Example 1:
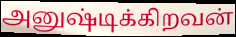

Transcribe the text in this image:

அனுஷ்டிக்கிறவன்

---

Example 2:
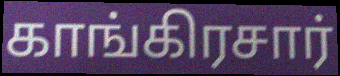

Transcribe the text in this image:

காங்கிரசார்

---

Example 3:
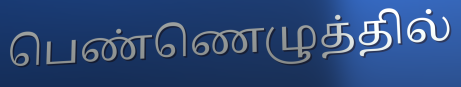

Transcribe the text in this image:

பெண்ணெழுத்தில்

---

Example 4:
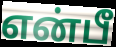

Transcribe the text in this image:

என்பீ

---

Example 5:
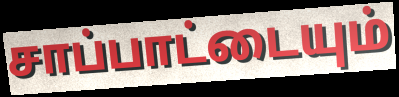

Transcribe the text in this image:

சாப்பாட்டையும்